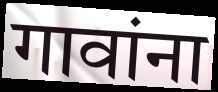
गावांना